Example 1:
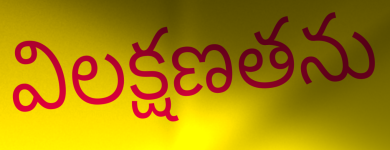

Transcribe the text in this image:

విలక్షణతను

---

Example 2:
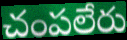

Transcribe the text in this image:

చంపలేరు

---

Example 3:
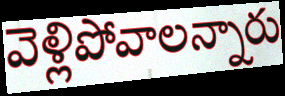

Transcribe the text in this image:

వెళ్లిపోవాలన్నారు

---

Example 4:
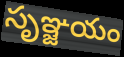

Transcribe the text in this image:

సృఞ్జయం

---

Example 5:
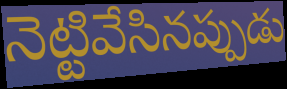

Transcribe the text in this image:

నెట్టివేసినప్పుడు